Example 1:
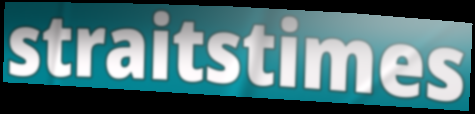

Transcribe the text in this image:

straitstimes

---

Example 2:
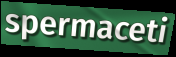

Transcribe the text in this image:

spermaceti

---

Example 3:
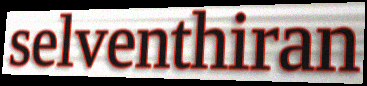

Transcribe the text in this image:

selventhiran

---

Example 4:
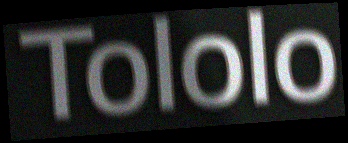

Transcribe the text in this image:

Tololo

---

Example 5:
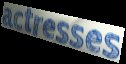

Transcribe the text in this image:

actresses